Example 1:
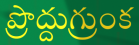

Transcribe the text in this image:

ప్రొద్దుగ్రుంక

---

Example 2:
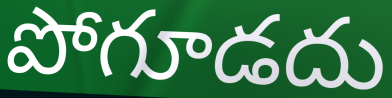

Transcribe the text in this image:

పోగూడదు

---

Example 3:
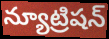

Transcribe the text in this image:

న్యూట్రిషన్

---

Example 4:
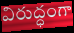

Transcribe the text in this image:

విరుద్ధంగా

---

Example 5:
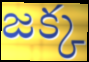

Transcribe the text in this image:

జక్క